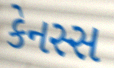
કેનસ્સ